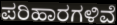
ಪರಿಹಾರಗಳಿವೆ